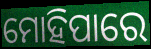
ମୋହିପାରେ